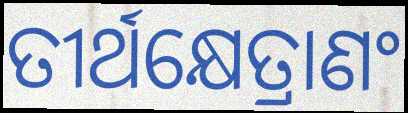
ତୀର୍ଥକ୍ଷେତ୍ରାଣଂ